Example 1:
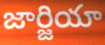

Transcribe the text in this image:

జార్జియా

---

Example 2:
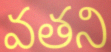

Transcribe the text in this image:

వతని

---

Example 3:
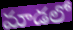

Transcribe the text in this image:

మాడలో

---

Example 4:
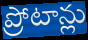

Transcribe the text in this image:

ప్రోటాన్లు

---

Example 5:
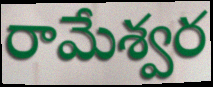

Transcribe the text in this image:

రామేశ్వర